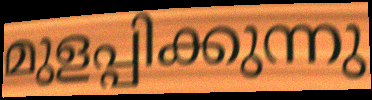
മുളപ്പിക്കുന്നു